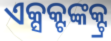
ଏକ୍ସକ୍ଟଙ୍କକ୍ଟ୍ର